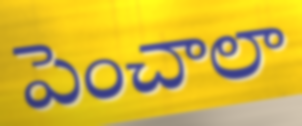
పెంచాలా